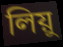
লিয়ু